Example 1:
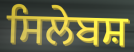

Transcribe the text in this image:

ਸਿਲੇਬਸ਼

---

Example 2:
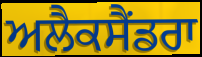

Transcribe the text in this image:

ਅਲੈਕਸੈਂਡਰਾ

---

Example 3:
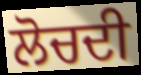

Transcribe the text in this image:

ਲੋਚਦੀ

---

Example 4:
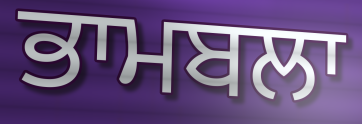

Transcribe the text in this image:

ਭਾਮਬਲਾ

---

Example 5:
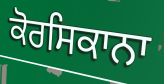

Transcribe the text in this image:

ਕੋਰਸਿਕਾਨਾ